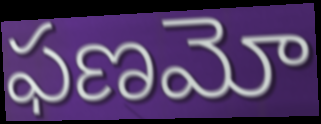
ఫణమో